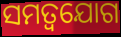
ସମତ୍ୱଯୋଗ